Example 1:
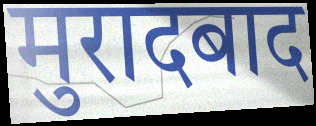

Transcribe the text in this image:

मुरादबाद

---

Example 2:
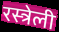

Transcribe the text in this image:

रस्त्रेली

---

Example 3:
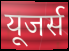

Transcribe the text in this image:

यूजर्स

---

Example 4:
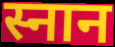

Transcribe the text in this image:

स्नान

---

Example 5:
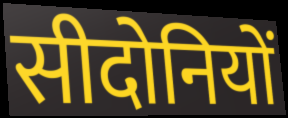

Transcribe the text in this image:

सीदोनियों